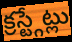
క్రస్ట్గేట్లు